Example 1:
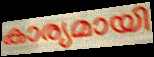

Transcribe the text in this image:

കാര്യമായി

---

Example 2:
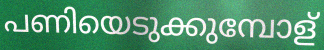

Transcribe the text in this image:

പണിയെടുക്കുമ്പോള്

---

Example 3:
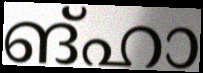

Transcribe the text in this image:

ങ്ഹാ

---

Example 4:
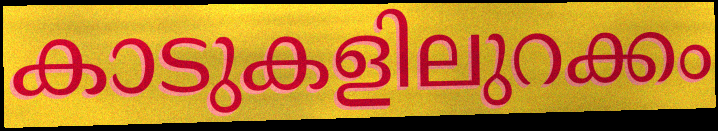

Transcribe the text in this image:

കാടുകളിലുറക്കം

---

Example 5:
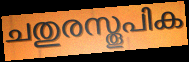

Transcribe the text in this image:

ചതുരസ്തൂപിക